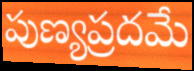
పుణ్యప్రదమే